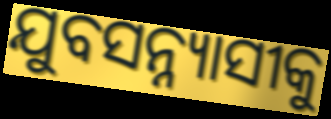
ଯୁବସନ୍ନ୍ୟାସୀକୁ